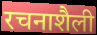
रचनाशैली